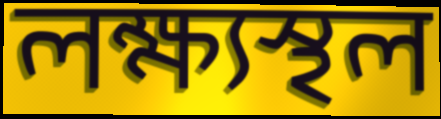
লক্ষ্যস্থল